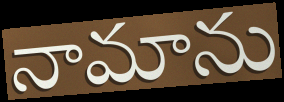
నామాను